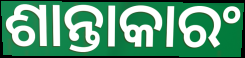
ଶାନ୍ତାକାରଂ